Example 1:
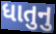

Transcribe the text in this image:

ધાતુનુ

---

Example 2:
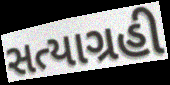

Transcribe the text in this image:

સત્યાગ્રહી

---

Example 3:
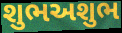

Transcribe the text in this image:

શુભઅશુભ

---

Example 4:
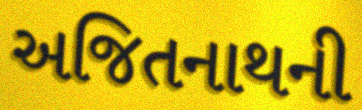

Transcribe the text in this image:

અજિતનાથની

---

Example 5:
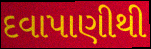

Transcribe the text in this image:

દવાપાણીથી